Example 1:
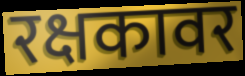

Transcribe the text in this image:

रक्षकावर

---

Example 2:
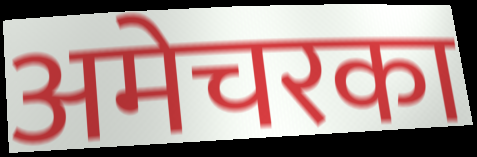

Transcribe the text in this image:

अमेचरका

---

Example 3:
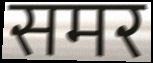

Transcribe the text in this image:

समर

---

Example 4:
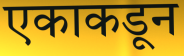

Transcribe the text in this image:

एकाकडून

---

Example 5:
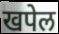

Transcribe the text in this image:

खपेल